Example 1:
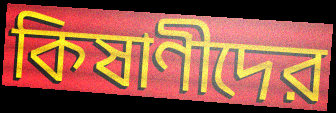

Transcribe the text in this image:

কিষাণীদের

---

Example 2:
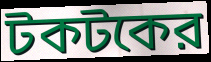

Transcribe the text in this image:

টকটকের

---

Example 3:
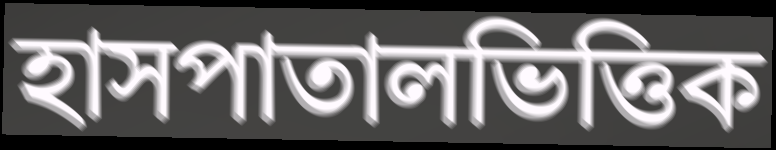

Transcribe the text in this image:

হাসপাতালভিত্তিক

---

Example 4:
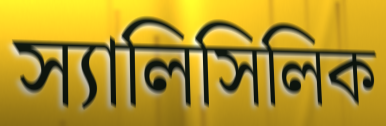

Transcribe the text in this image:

স্যালিসিলিক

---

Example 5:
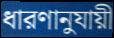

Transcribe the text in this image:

ধারণানুযায়ী